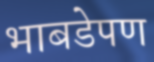
भाबडेपण